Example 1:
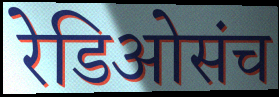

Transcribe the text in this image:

रेडिओसंच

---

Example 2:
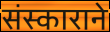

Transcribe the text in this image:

संस्काराने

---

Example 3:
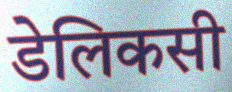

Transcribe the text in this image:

डेलिकसी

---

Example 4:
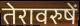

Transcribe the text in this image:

तेरावरुषें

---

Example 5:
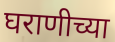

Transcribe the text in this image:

घराणीच्या